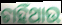
ଚାହିଁଥାଉ